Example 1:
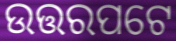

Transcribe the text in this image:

ଉତ୍ତରପଟେ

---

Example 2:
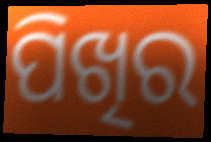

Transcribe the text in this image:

ପିଖିର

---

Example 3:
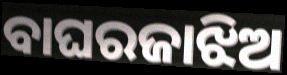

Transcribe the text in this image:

ବାଘରଜାଝିଅ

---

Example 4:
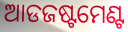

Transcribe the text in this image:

ଆଡଜଷ୍ଟମେଣ୍ଟ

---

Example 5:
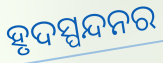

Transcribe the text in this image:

ହୃଦସ୍ପନ୍ଦନର